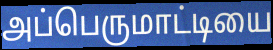
அப்பெருமாட்டியை